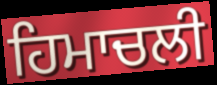
ਹਿਮਾਚਲੀ